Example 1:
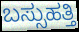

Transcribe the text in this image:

ಬಸ್ಸುಹತ್ತಿ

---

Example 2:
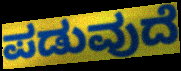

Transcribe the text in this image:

ಪಡುವುದೆ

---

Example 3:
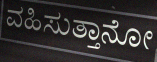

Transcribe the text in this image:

ವಹಿಸುತ್ತಾನೋ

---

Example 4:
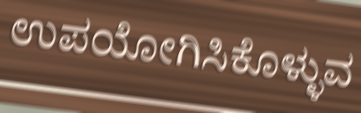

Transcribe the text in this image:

ಉಪಯೋಗಿಸಿಕೊಳ್ಳುವ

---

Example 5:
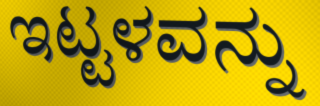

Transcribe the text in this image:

ಇಟ್ಟಳವನ್ನು